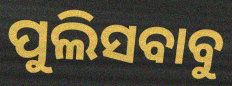
ପୁଲିସବାବୁ